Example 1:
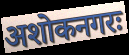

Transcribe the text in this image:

अशोकनगरः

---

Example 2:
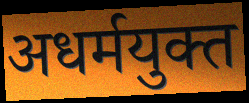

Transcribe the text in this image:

अधर्मयुक्त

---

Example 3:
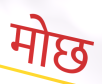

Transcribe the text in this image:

मोछ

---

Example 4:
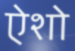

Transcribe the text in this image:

ऐशो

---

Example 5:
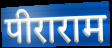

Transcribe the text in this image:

पीराराम